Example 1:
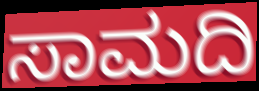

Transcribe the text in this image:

ಸಾಮದಿ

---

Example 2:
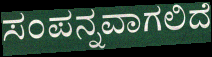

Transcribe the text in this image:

ಸಂಪನ್ನವಾಗಲಿದೆ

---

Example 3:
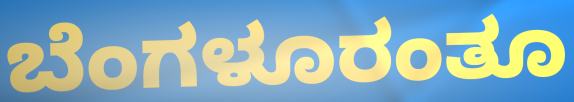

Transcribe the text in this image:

ಬೆಂಗಳೂರಂತೂ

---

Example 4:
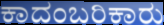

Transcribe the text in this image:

ಕಾದಂಬರಿಕಾರು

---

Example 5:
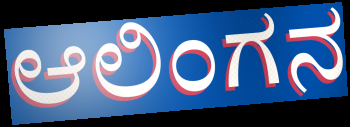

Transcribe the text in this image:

ಆಲಿಂಗನ